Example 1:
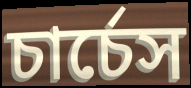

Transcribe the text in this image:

চার্চেস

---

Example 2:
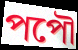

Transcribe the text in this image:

পপৌ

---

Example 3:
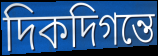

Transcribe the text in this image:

দিকদিগন্তে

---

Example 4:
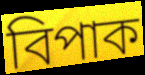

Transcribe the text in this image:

বিপাক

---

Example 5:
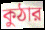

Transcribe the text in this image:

কুঠার